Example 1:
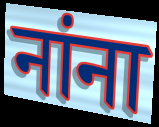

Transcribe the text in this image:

नांना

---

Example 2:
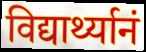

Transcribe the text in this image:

विद्यार्थ्यानं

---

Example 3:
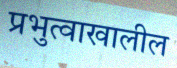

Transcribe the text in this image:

प्रभुत्वाखालील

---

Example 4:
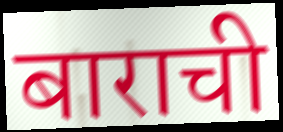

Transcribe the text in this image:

बाराची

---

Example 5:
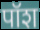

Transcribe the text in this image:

पॉश